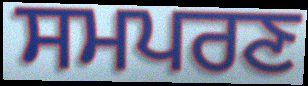
ਸਮਪਰਣ